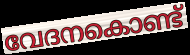
വേദനകൊണ്ട്